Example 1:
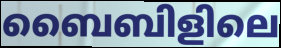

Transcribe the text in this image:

ബൈബിളിലെ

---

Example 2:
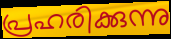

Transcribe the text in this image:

പ്രഹരിക്കുന്നു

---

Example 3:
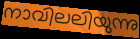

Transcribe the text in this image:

നാവിലലിയുന്നു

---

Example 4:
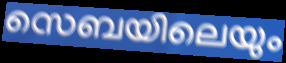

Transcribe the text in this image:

സെബയിലെയും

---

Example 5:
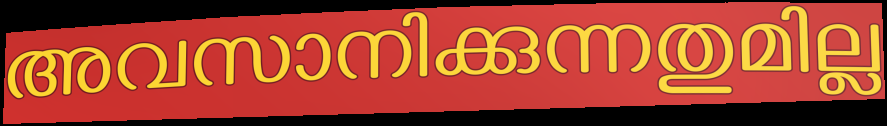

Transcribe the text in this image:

അവസാനിക്കുന്നതുമില്ല